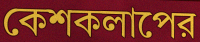
কেশকলাপের